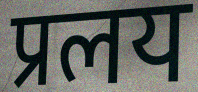
प्रलय